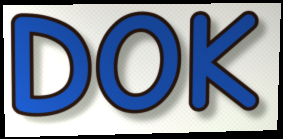
DOK